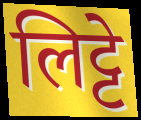
लिट्टे